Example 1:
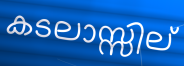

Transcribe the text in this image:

കടലാസ്സില്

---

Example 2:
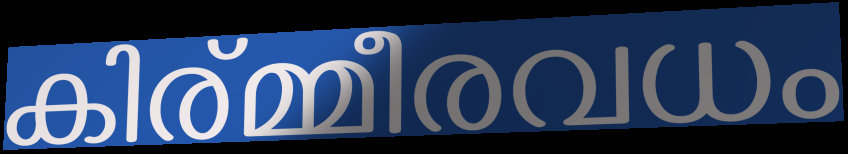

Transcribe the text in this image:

കിര്മ്മീരവധം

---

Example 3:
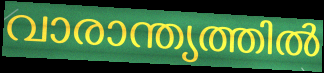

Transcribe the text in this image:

വാരാന്ത്യത്തിൽ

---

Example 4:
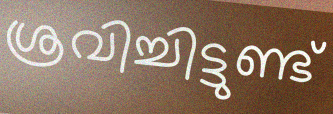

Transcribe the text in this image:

ശ്രവിച്ചിട്ടുണ്ട്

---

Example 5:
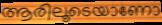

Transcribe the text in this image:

ആരിലൂടെയാണോ